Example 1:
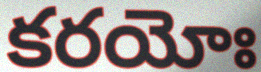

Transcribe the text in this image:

కరయోః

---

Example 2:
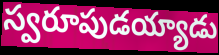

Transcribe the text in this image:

స్వరూపుడయ్యాడు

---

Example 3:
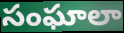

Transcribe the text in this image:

సంఘాలా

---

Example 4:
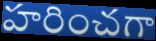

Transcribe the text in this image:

హరించగా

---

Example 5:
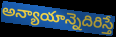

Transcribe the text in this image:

అన్యాయాన్నెదిరిస్తే